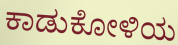
ಕಾಡುಕೋಳಿಯ